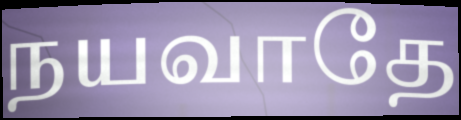
நயவாதே